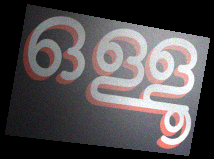
ഒള്ളൂ